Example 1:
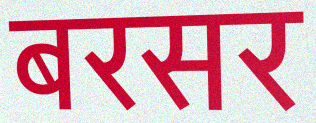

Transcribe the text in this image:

बरसर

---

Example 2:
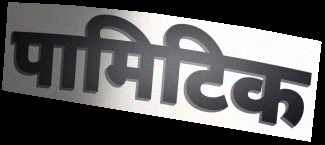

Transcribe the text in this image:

पामिटिक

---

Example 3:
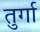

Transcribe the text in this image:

तुर्गा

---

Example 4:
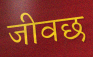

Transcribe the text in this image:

जीवछ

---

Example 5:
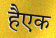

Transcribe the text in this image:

हैएक